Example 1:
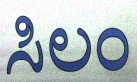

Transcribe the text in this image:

ಸಿಲಂ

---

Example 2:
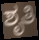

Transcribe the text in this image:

ಶೃತಿ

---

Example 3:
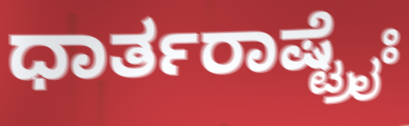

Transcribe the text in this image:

ಧಾರ್ತರಾಷ್ಟ್ರೈಃ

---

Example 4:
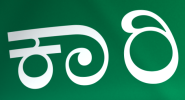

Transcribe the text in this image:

ಕಾರಿ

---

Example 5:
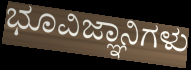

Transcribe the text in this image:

ಭೂವಿಜ್ಞಾನಿಗಳು